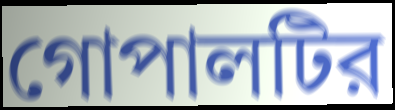
গোপালটির